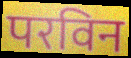
परविन